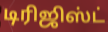
டிரிஜிஸ்ட்